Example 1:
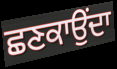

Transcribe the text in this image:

ਛਣਕਾਉਂਦਾ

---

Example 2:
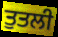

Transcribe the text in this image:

ਤੁਤਲੀ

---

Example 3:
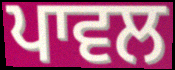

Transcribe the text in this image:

ਪਾਵਲ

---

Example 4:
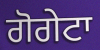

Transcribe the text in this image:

ਗੋਗੇਟਾ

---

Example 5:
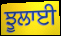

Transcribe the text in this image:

ਝੂਲਾਈ